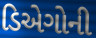
ડિએગોની